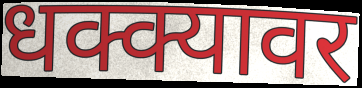
धक्क्यावर